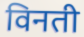
विनती